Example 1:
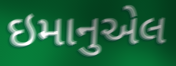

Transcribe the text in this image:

ઇમાનુએલ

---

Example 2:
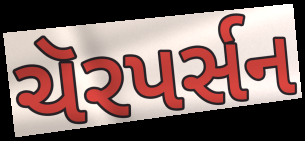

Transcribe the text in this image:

ચૅરપર્સન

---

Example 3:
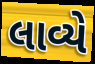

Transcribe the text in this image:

લાવ્યે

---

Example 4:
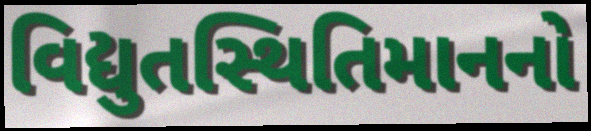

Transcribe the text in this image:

વિદ્યુતસ્થિતિમાનનો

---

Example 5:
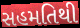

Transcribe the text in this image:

સહમતિથી